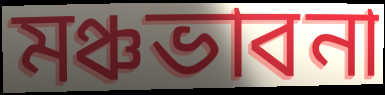
মঞ্চভাবনা